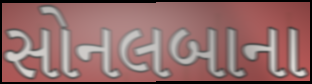
સોનલબાના